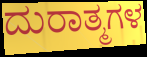
ದುರಾತ್ಮಗಳ